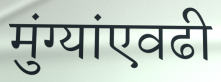
मुंग्यांएवढी